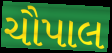
ચૌપાલ